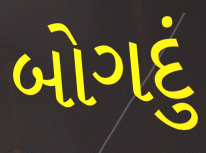
બોગદું